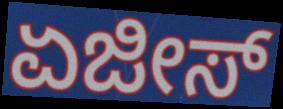
ಏಜೀಸ್